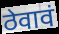
ठेवावं